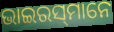
ଭାଇରସ୍‌ମାନେ